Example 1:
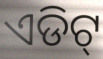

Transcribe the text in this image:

ଏଡିଟ୍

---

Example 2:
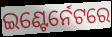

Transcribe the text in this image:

ଇଣ୍ଟେର୍ନେଟରେ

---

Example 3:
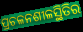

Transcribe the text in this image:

ପ୍ରଚଳନଶୀଳସ୍ଥିତିର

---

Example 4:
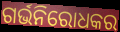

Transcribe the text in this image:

ଗର୍ଭନିରୋଧକର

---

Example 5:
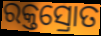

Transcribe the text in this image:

ରକ୍ତସ୍ରୋତ